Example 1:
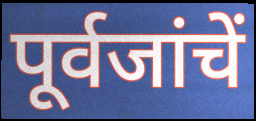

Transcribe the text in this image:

पूर्वजांचें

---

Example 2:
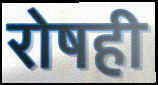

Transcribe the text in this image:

रोषही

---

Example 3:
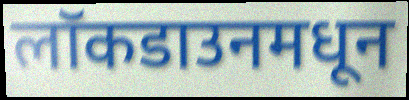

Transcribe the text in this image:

लॉकडाउनमधून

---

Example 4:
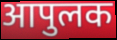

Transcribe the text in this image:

आपुलक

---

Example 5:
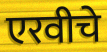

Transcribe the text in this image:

एरवीचे